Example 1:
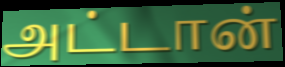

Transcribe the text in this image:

அட்டான்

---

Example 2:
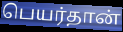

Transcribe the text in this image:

பெயர்தான்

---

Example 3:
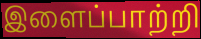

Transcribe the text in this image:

இளைப்பாற்றி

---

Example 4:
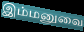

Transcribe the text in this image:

இம்மனுவை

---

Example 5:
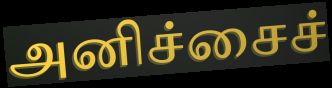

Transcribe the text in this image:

அனிச்சைச்